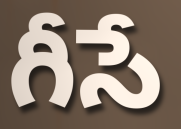
గీసే